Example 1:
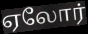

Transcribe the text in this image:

ஏலோர்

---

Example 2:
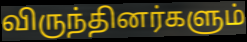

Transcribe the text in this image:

விருந்தினர்களும்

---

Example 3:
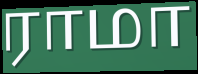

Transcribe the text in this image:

ராமா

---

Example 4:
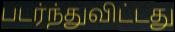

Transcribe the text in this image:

படர்ந்துவிட்டது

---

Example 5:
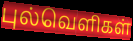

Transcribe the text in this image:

புல்வெளிகள்